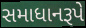
સમાધાનરૂપે